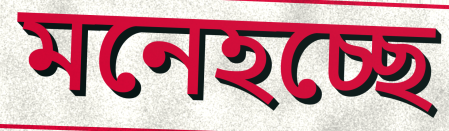
মনেহচ্ছে